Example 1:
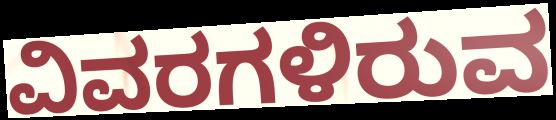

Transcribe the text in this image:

ವಿವರಗಳಿರುವ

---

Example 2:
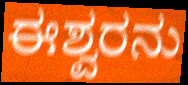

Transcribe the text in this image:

ಈಶ್ವರನು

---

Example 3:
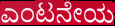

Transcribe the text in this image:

ಎಂಟನೇಯ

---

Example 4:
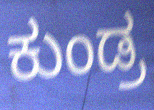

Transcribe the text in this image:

ಕುಂಡ್ರ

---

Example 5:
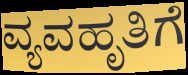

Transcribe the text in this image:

ವ್ಯವಹೃತಿಗೆ